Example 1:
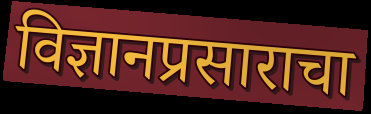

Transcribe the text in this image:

विज्ञानप्रसाराचा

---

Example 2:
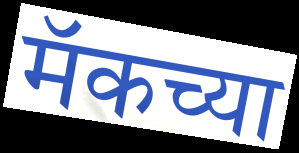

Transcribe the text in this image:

मॅकच्या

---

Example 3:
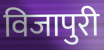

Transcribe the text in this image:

विजापुरी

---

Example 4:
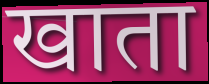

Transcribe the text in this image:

खाता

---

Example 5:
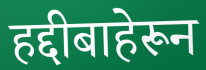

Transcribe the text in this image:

हद्दीबाहेरून